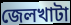
জেলখাটা